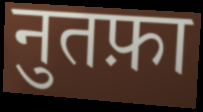
नुतफ़ा